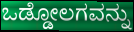
ಒಡ್ಡೋಲಗವನ್ನು